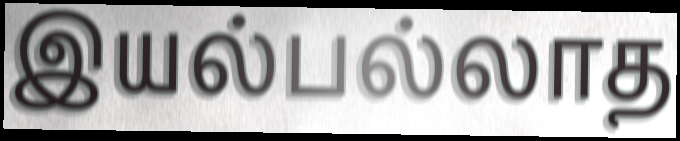
இயல்பல்லாத